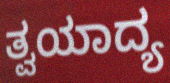
ತ್ವಯಾದ್ಯ